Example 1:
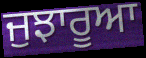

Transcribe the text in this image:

ਜੁਝਾਰੂਆ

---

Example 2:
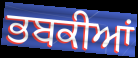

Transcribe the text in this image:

ਭਬਕੀਆਂ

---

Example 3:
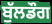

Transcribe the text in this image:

ਬੁੱਲਡੌਗ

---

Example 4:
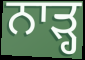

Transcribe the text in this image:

ਨਾੜ੍ਹ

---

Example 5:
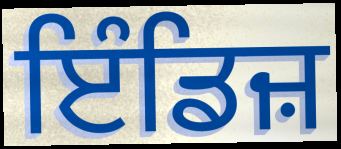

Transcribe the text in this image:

ਇੰਡਿਜ਼